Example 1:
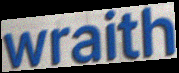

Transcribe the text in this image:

wraith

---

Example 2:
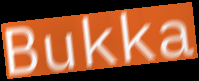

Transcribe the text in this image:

Bukka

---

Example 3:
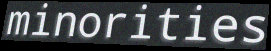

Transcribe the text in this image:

minorities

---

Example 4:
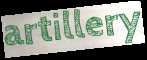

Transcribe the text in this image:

artillery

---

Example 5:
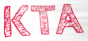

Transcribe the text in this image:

KTA